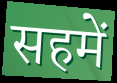
सहमें